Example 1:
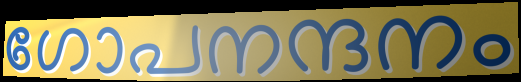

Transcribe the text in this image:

ഗോപനന്ദനം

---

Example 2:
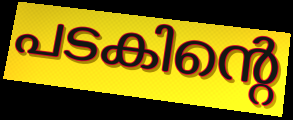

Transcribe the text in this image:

പടകിന്റെ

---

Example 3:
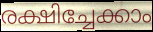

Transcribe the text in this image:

രക്ഷിച്ചേക്കാം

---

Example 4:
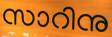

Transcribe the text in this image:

സാറിനു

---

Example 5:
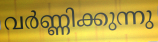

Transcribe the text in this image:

വർണ്ണിക്കുന്നു